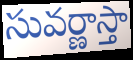
సువర్ణాస్తా